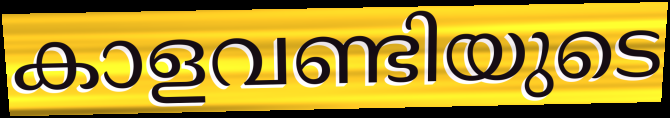
കാളവണ്ടിയുടെ